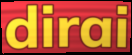
dirai